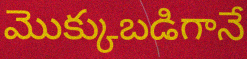
మొక్కుబడిగానే